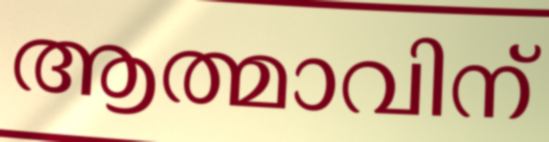
ആത്മാവിന്